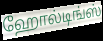
ஹோல்டிங்ஸ்